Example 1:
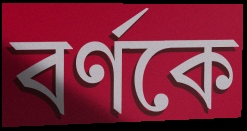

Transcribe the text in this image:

বর্ণকে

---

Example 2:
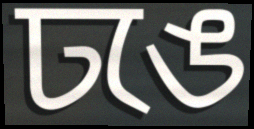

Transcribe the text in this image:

ঢঙে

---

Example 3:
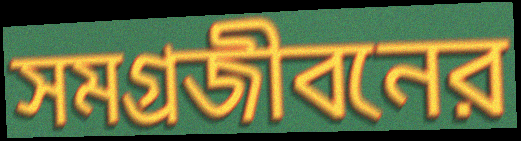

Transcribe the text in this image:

সমগ্রজীবনের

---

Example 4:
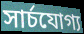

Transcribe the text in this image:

সার্চযোগ্য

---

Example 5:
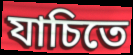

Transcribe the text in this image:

যাচিতে